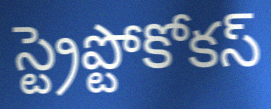
స్ట్రెప్టోకోకస్